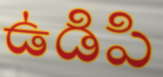
ఉడిపి